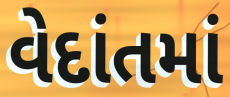
વેદાંતમાં